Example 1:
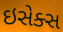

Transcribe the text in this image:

ઇસેક્સ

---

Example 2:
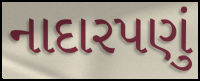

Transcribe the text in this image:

નાદારપણું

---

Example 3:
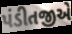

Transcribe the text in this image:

પંડીતજીએ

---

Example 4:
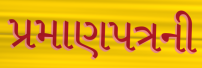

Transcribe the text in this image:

પ્રમાણપત્રની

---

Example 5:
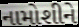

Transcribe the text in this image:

નામોશીને